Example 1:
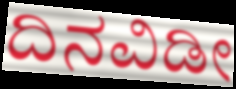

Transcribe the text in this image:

ದಿನವಿಡೀ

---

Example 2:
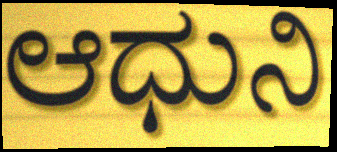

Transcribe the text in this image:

ಆಧುನಿ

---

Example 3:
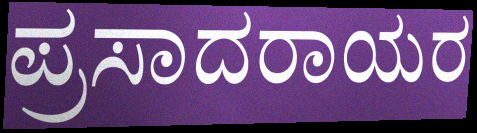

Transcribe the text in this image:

ಪ್ರಸಾದರಾಯರ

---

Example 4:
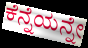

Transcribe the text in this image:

ಕೆನ್ನೆಯನ್ನೇ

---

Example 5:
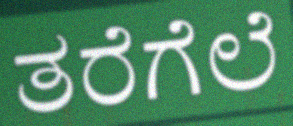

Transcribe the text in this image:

ತರೆಗೆಲೆ